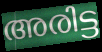
അരിട്ട